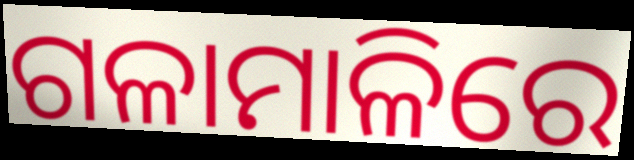
ଗଳାମାଳିରେ